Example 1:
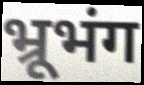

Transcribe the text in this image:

भ्रूभंग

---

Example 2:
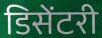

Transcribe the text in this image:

डिसेंटरी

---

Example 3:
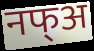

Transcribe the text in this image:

नफ्अ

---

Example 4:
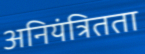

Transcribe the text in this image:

अनियंत्रितता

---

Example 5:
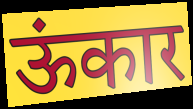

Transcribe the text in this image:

ऊंकार